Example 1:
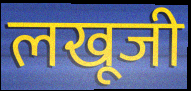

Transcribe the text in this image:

लखूजी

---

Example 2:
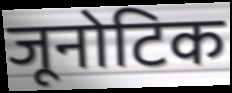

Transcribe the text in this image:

जूनोटिक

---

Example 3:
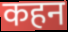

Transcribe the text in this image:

कहन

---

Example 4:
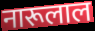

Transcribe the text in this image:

नारूलाल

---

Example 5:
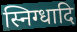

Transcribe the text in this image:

स्निग्धादि